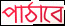
পাঠাবে